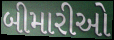
બીમારીઓ